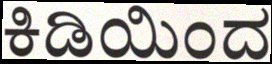
ಕಿಡಿಯಿಂದ